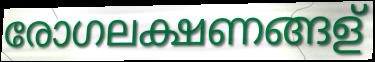
രോഗലക്ഷണങ്ങള്